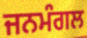
ਜਨਮੰਗਲ